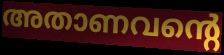
അതാണവന്റെ